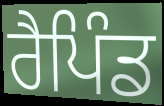
ਰੈਪਿੰਡ